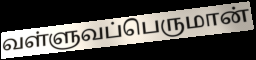
வள்ளுவப்பெருமான்